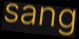
sang